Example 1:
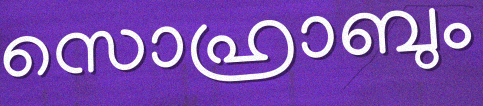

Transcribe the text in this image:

സൊഹ്രാബും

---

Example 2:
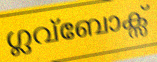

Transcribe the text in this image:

ഗ്ലവ്ബോക്സ്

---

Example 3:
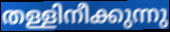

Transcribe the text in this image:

തള്ളിനീക്കുന്നു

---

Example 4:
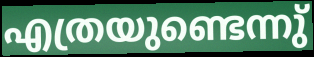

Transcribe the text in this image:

എത്രയുണ്ടെന്നു്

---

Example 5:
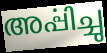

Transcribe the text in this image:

അൎപ്പിച്ചു